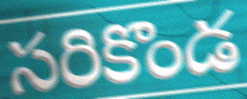
సరికొండ